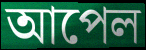
আপেল